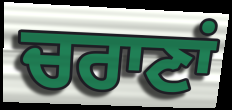
ਚਰਾਣਾਂ